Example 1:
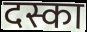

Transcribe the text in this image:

दस्का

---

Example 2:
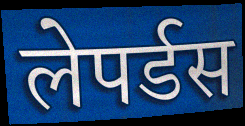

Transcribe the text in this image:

लेपर्डस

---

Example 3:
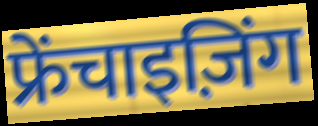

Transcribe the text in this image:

फ्रेंचाइज़िंग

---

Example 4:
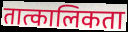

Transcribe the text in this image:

तात्कालिकता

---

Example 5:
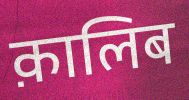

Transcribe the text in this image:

क़ालिब